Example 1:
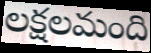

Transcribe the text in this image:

లక్షలమంది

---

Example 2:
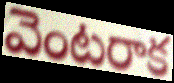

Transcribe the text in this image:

వెంటరాక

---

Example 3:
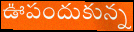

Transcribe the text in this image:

ఊపందుకున్న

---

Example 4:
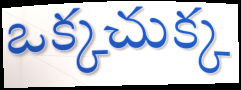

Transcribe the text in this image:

ఒక్కచుక్క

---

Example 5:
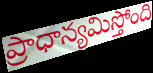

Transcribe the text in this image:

ప్రాధాన్యమిస్తోంది